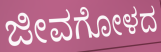
ಜೀವಗೋಳದ